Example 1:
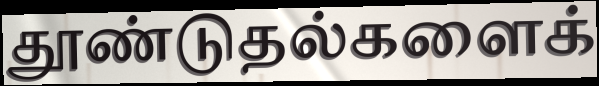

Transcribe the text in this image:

தூண்டுதல்களைக்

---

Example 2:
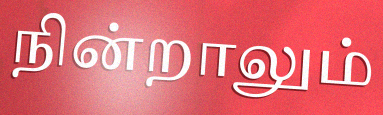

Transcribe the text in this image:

நின்றாலும்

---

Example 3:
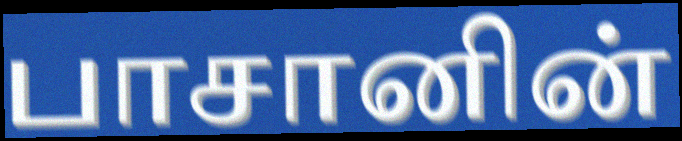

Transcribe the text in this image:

பாசானின்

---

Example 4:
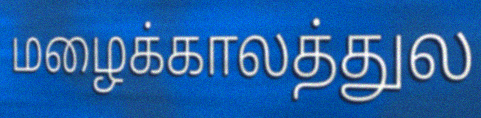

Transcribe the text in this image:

மழைக்காலத்துல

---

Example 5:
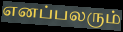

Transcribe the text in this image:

எனப்பலரும்